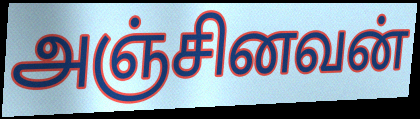
அஞ்சினவன்